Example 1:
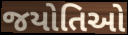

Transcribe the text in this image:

જયોતિઓ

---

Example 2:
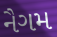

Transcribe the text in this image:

નૈગમ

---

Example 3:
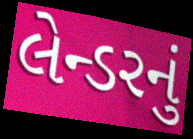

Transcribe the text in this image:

લેન્ડરનું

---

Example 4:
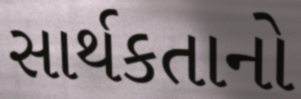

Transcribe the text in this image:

સાર્થકતાનો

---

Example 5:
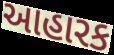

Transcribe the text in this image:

આહારક